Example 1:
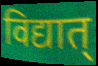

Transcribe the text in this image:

विद्यात्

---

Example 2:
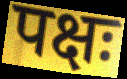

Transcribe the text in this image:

पक्षः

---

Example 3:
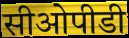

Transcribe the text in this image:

सीओपीडी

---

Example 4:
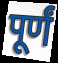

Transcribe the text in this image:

पूर्णं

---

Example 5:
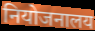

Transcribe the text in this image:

नियोजनालय